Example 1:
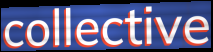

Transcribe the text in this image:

collective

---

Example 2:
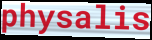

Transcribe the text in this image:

physalis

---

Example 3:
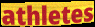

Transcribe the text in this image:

athletes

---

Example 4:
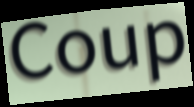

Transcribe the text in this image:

Coup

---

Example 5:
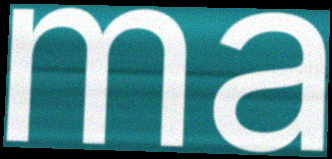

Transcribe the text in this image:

ma